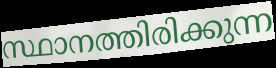
സ്ഥാനത്തിരിക്കുന്ന